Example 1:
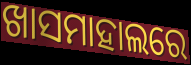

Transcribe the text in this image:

ଖାସମାହାଲରେ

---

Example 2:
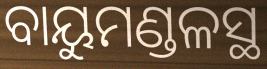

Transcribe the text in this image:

ବାୟୁମଣ୍ଡଳସ୍ଥ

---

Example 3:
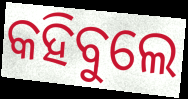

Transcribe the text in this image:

କହିବୁଲେ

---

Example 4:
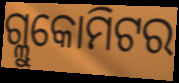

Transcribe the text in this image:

ଗ୍ଲୁକୋମିଟର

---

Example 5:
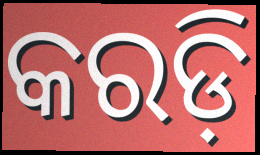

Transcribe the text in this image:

କରଡ଼ି